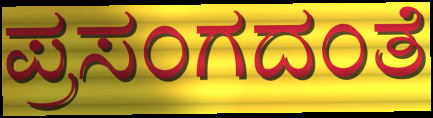
ಪ್ರಸಂಗದಂತೆ